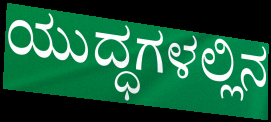
ಯುದ್ಧಗಳಲ್ಲಿನ